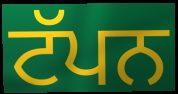
ਟੱਪਨ